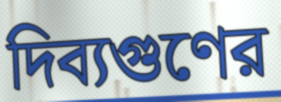
দিব্যগুণের